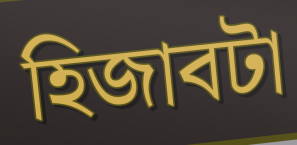
হিজাবটা